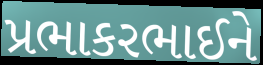
પ્રભાકરભાઈને